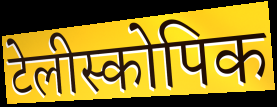
टेलीस्कोपिक